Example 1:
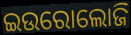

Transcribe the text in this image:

ଇଉରୋଲୋଜି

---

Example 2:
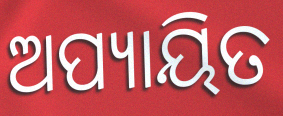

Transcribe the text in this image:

ଅପ୍ୟାୟିତ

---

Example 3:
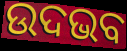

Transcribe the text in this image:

ଉଦଭବ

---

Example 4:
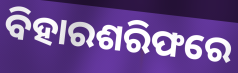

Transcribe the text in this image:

ବିହାରଶରିଫରେ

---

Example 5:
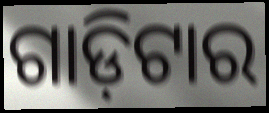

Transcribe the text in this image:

ଗାଡ଼ିଟାର